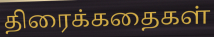
திரைக்கதைகள்